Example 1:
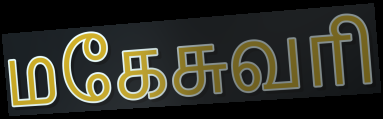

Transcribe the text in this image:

மகேசுவரி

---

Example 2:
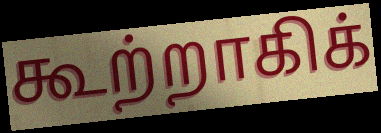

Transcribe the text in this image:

கூற்றாகிக்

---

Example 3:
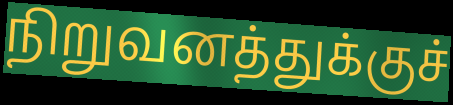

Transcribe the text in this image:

நிறுவனத்துக்குச்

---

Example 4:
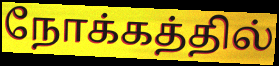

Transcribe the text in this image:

நோக்கத்தில்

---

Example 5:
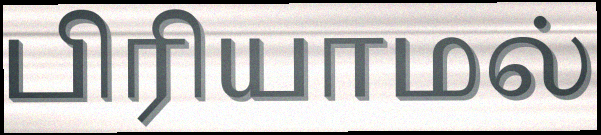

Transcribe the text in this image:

பிரியாமல்